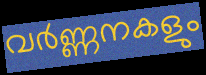
വർണ്ണനകളും